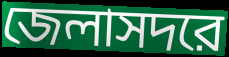
জেলাসদরে